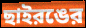
ছাইরঙের